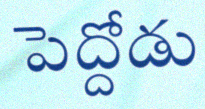
పెద్దోడు